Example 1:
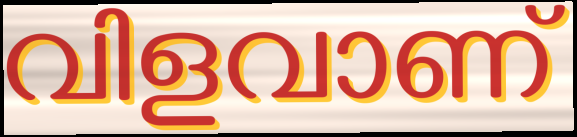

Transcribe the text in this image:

വിളവാണ്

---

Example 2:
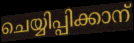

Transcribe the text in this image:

ചെയ്യിപ്പിക്കാന്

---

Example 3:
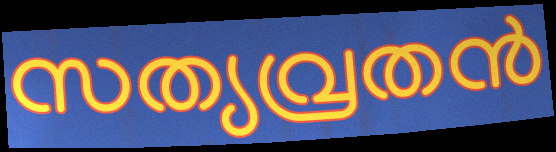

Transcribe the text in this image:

സത്യവ്രതൻ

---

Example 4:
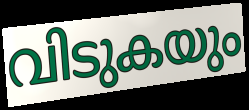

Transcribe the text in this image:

വിടുകയും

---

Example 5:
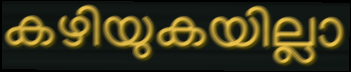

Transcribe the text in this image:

കഴിയുകയില്ലാ